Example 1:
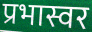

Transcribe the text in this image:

प्रभास्वर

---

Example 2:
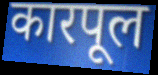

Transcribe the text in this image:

कारपूल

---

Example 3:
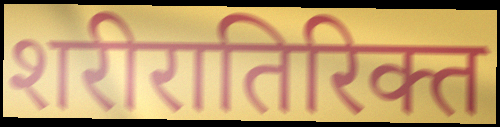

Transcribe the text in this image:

शरीरातिरिक्त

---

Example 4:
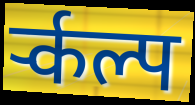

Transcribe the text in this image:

र्र्कल्प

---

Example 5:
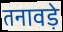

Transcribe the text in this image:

तनावड़े